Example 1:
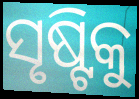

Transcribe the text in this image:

ସୃଷ୍ଟିକୁ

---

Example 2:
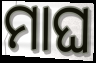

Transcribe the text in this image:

ମାଘ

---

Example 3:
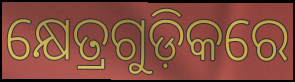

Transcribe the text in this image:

କ୍ଷେତ୍ରଗୁଡ଼ିକରେ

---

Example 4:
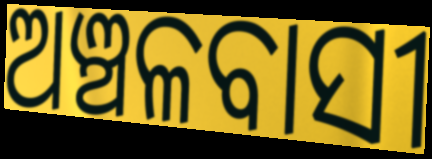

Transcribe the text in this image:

ଅଞ୍ଚଳବାସୀ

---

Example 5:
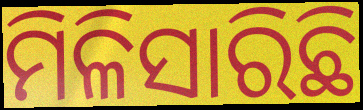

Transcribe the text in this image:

ମିଳିସାରିଛି